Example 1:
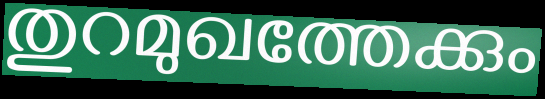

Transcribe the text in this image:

തുറമുഖത്തേക്കും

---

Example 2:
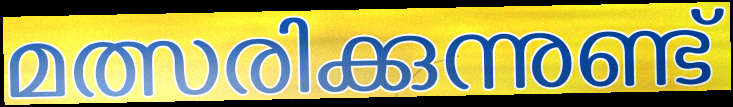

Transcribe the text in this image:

മത്സരിക്കുന്നുണ്ട്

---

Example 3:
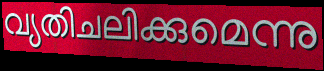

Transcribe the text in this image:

വ്യതിചലിക്കുമെന്നു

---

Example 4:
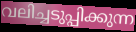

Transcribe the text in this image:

വലിച്ചടുപ്പിക്കുന്ന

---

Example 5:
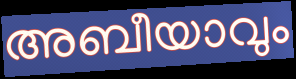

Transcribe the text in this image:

അബീയാവും